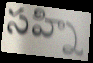
సహ్ని